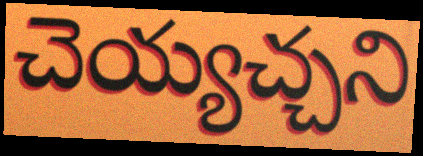
చెయ్యచ్చని